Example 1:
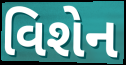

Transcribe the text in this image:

વિશેન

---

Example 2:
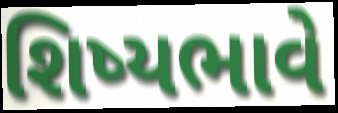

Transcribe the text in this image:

શિષ્યભાવે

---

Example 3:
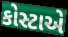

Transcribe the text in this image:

કોસ્ટાએ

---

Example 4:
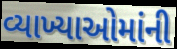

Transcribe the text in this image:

વ્યાખ્યાઓમાંની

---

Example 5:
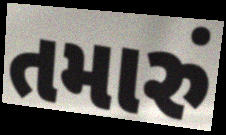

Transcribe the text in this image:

તમારું